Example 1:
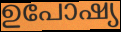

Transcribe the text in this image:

ഉപോഷ്യ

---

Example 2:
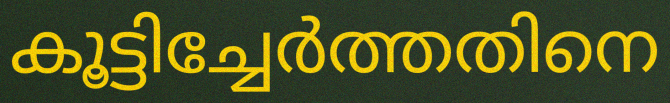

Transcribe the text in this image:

കൂട്ടിച്ചേർത്തതിനെ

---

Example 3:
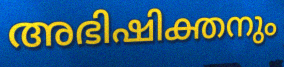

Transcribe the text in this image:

അഭിഷിക്തനും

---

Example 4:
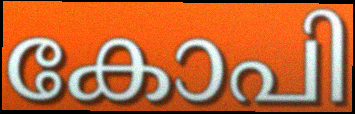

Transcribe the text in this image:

കോപി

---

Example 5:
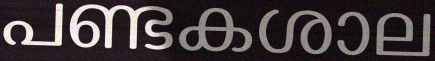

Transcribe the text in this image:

പണ്ടകശാല